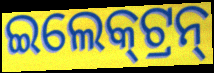
ଇଲେକ୍‌ଟ୍ରନ୍